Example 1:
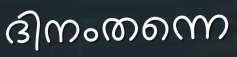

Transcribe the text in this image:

ദിനംതന്നെ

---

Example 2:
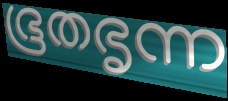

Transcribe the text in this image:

ഭൂതഭൃന്ന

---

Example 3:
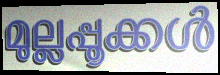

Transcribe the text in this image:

മുല്ലപ്പൂക്കൾ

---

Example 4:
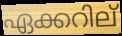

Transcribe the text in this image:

ഏക്കറില്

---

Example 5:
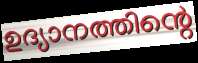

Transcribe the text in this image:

ഉദ്യാനത്തിന്റെ